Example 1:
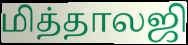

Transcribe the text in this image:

மித்தாலஜி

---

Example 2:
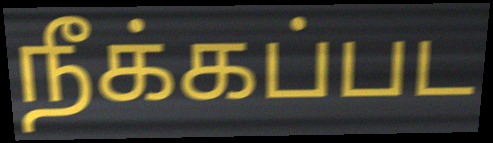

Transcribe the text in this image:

நீக்கப்பட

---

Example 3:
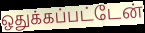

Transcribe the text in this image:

ஒதுக்கப்பட்டேன்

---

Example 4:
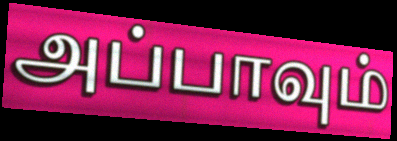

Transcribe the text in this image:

அப்பாவும்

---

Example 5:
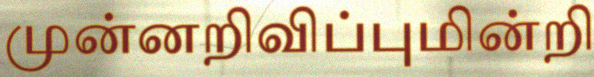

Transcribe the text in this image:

முன்னறிவிப்புமின்றி